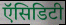
ऍसिडिटी